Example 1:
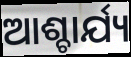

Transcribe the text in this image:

ଆଶ୍ଚାର୍ଯ୍ୟ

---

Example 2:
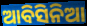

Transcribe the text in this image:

ଆବିସିନିଆ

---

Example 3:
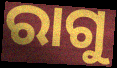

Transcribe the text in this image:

ରାଗୁ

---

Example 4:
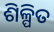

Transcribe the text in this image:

ଶିଳ୍ପିତ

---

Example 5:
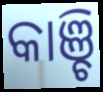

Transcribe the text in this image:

କାଞ୍ଚି